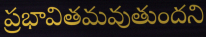
ప్రభావితమవుతుందని